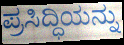
ಪ್ರಸಿದ್ಧಿಯನ್ನು